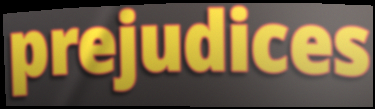
prejudices